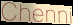
Chenni